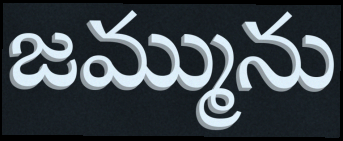
జమ్మును